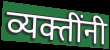
व्यक्‍तींनी